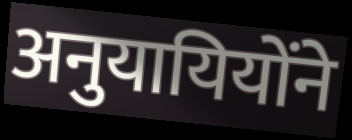
अनुयायियोंने